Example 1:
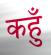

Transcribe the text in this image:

कहुँ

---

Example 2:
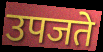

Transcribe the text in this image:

उपजते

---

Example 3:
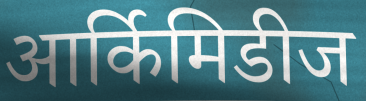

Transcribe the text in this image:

आर्किमिडीज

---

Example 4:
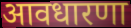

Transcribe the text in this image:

आवधारणा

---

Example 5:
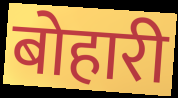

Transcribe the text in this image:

बोहारी